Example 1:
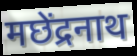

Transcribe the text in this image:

मछेंद्रनाथ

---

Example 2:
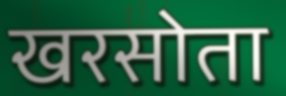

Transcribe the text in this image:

खरसोता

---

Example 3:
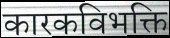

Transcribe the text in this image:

कारकविभक्ति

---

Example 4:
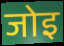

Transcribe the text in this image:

जोइ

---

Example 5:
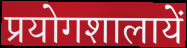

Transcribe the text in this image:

प्रयोगशालायें